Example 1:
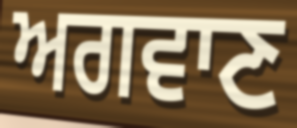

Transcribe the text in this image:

ਅਗਵਾਣ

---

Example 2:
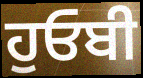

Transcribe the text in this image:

ਹੁਓਬੀ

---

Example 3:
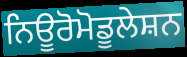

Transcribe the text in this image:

ਨਿਊਰੋਮੋਡੂਲੇਸ਼ਨ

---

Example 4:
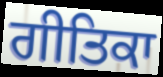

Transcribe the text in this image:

ਗੀਤਿਕਾ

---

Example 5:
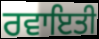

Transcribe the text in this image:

ਰਵਾਇਤੀ